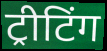
ट्रीटिंग